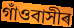
গাঁওবাসীৰ